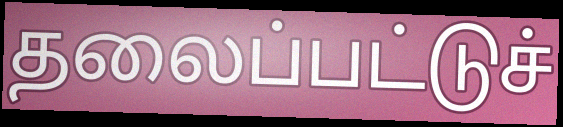
தலைப்பட்டுச்